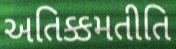
અતિક્કમતીતિ